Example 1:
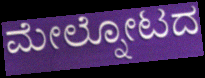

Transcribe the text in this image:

ಮೇಲ್ನೋಟದ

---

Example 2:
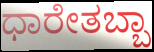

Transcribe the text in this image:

ಧಾರೇತಬ್ಬಾ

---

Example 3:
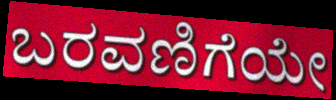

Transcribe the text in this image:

ಬರವಣಿಗೆಯೇ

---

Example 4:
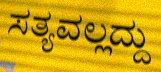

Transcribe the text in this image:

ಸತ್ಯವಲ್ಲದ್ದು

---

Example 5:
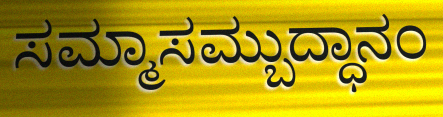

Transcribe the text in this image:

ಸಮ್ಮಾಸಮ್ಬುದ್ಧಾನಂ